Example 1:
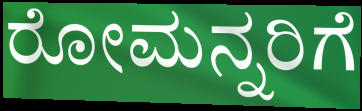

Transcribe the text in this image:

ರೋಮನ್ನರಿಗೆ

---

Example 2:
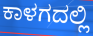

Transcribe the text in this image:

ಕಾಳಗದಲ್ಲಿ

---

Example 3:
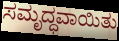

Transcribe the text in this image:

ಸಮೃದ್ಧವಾಯಿತು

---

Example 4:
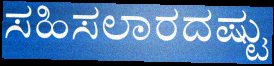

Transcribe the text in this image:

ಸಹಿಸಲಾರದಷ್ಟು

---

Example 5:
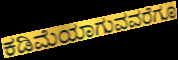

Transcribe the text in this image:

ಕಡಿಮೆಯಾಗುವವರೆಗೂ